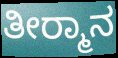
ತೀರ‍್ಮಾನ